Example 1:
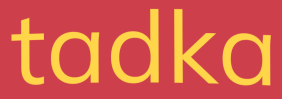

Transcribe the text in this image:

tadka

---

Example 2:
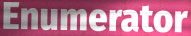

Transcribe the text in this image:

Enumerator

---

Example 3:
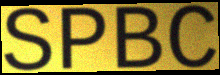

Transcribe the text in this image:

SPBC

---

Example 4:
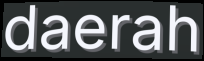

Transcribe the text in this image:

daerah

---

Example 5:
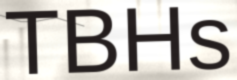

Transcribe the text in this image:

TBHs